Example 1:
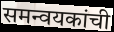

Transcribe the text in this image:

समन्वयकांची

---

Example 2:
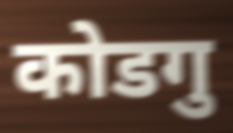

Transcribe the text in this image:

कोडगु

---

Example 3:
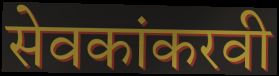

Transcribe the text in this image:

सेवकांकरवी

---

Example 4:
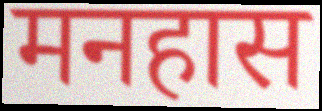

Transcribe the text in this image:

मनहास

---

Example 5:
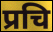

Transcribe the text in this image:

प्रचि